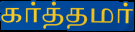
கர்த்தமர்